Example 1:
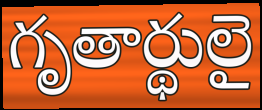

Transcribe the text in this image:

గృతార్థులై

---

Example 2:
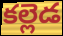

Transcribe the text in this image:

కల్లెడ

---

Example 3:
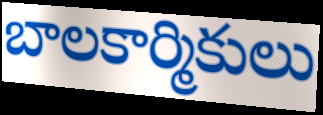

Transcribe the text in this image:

బాలకార్మికులు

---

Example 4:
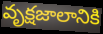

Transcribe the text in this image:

వృక్షజాలానికి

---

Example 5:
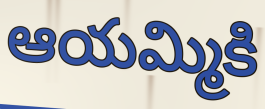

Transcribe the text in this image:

ఆయమ్మికి